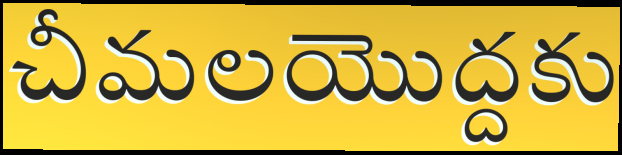
చీమలయొద్దకు